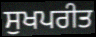
ਸੁਖਪਰੀਤ